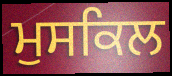
ਮੁਸਕਿਲ